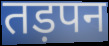
तड़पन